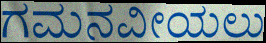
ಗಮನವೀಯಲು